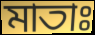
মাতাঃ